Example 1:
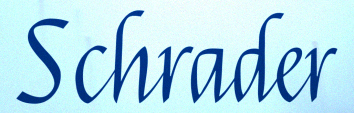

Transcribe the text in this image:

Schrader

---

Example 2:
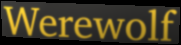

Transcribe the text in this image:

Werewolf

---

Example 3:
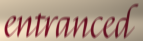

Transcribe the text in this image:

entranced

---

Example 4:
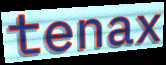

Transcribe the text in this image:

tenax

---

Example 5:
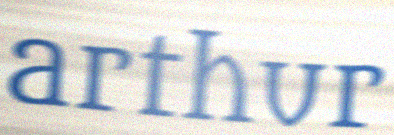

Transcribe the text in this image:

arthur